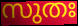
സുതഃ